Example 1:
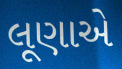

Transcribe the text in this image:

લૂણાએ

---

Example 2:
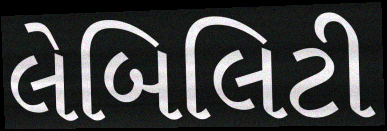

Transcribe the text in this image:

લેબિલિટી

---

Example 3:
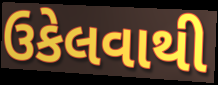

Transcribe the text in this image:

ઉકેલવાથી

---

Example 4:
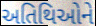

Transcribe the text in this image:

અતિથિઓને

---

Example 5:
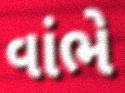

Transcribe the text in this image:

વાંભે